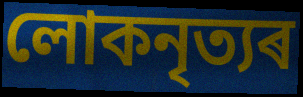
লোকনৃত্যৰ